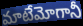
మాటేమోగానీ